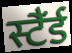
स्टैंर्ड